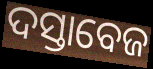
ଦସ୍ତାବେଜ